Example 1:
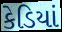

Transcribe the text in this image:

કેડિયાં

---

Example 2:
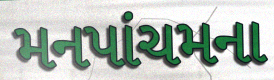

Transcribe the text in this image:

મનપાંચમના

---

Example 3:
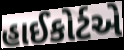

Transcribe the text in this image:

હાઈકોર્ટએ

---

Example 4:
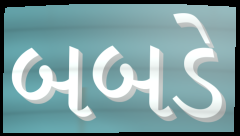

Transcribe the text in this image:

બબડે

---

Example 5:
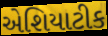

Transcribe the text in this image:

એશિયાટીક